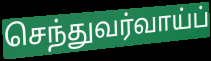
செந்துவர்வாய்ப்